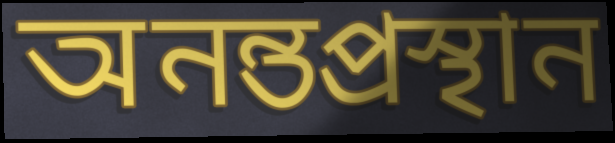
অনন্তপ্রস্থান